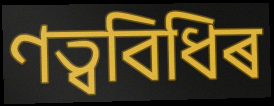
ণত্ববিধিৰ